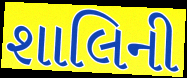
શાલિની